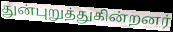
துன்புறுத்துகின்றனர்